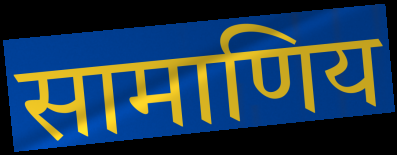
सामाणिय